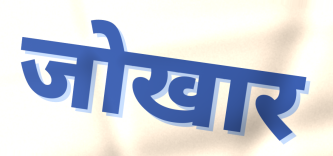
जोखार